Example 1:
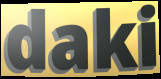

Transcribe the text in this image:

daki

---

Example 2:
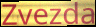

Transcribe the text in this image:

Zvezda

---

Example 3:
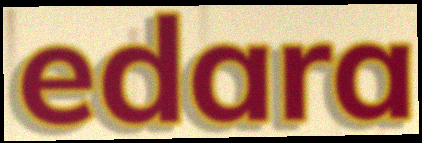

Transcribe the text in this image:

edara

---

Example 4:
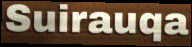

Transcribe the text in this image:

Suirauqa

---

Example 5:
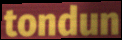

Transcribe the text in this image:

tondun